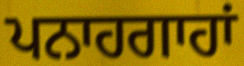
ਪਨਾਹਗਾਹਾਂ